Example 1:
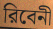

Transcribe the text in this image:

রিবেনী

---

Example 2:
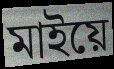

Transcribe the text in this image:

মাইয়ে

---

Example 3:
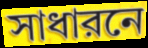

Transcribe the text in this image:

সাধারনে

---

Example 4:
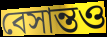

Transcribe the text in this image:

বেসান্তও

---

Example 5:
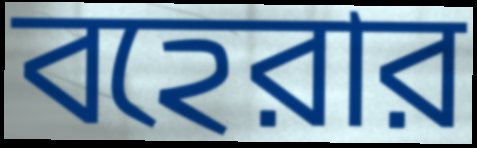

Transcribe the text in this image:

বহেরার